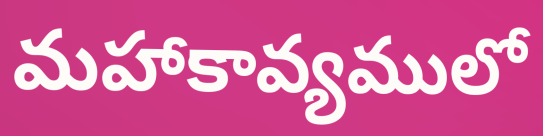
మహాకావ్యములో